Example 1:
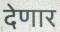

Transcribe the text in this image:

देणार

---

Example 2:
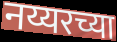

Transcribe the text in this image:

नय्यरच्या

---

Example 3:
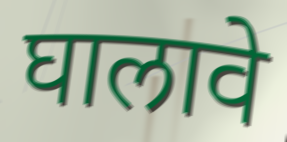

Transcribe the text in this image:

घालावे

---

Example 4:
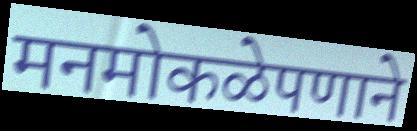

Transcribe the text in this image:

मनमोकळेपणाने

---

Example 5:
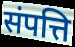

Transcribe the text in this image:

संपत्ति